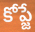
కోప్జే